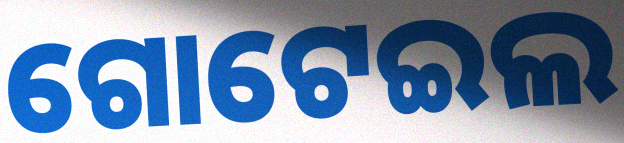
ଗୋଟେଇଲ